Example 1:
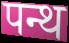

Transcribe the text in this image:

पन्थ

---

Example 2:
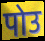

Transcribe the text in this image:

पोउ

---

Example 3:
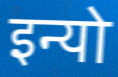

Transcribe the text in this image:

इन्यो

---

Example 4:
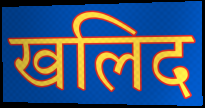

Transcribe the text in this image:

खलिद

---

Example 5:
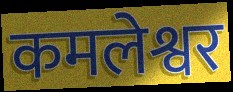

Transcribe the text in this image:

कमलेश्वर